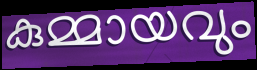
കുമ്മായവും